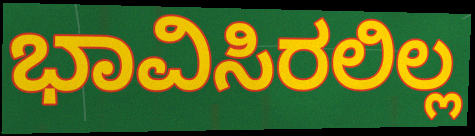
ಭಾವಿಸಿರಲಿಲ್ಲ